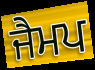
ਜੈਮਪ